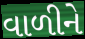
વાળીને